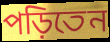
পড়িতেন